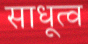
साधूत्व